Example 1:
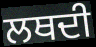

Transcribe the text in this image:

ਲਥਦੀ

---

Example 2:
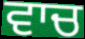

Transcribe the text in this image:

ਵਾਚ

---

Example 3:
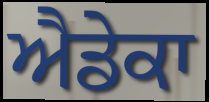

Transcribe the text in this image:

ਐਡੇਕਾ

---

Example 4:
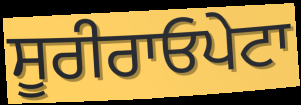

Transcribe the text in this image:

ਸੂਰੀਰਾਓਪੇਟਾ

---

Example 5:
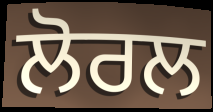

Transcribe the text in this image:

ਲੋਰਲ